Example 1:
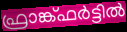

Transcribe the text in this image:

ഫ്രാങ്ക്ഫർട്ടിൽ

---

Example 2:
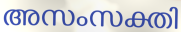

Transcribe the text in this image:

അസംസക്തി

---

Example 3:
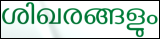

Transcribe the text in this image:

ശിഖരങ്ങളും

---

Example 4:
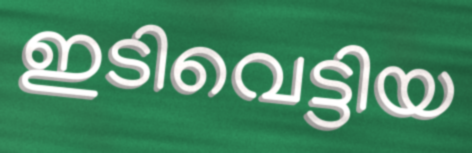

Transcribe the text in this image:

ഇടിവെട്ടിയ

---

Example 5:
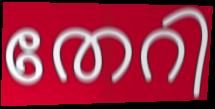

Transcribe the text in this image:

തേറി